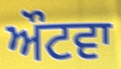
ਔਟਵਾ